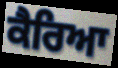
ਕੈਰਿਆ